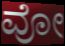
ವೋ